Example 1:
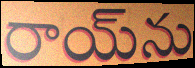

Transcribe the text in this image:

రాయ్‌ను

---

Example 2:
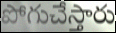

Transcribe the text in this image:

పోగుచేస్తారు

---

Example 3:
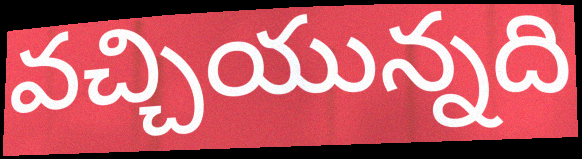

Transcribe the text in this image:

వచ్చియున్నది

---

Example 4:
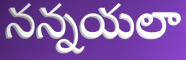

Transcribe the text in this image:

నన్నయలా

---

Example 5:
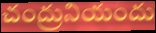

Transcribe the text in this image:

చంద్రునియందు